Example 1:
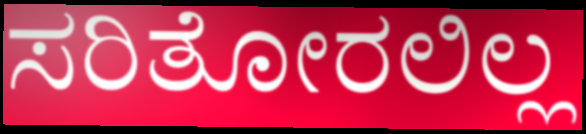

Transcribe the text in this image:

ಸರಿತೋರಲಿಲ್ಲ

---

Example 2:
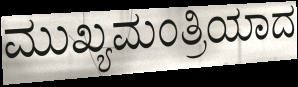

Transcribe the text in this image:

ಮುಖ್ಯಮಂತ್ರಿಯಾದ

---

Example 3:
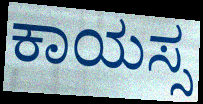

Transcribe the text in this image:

ಕಾಯಸ್ಸ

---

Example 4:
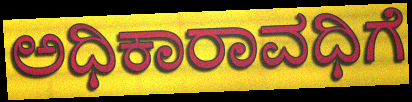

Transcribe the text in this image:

ಅಧಿಕಾರಾವಧಿಗೆ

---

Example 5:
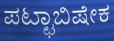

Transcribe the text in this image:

ಪಟ್ಟಾಬಿಷೇಕ